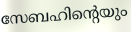
സേബഹിന്റെയും